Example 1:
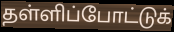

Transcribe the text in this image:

தள்ளிப்போட்டுக்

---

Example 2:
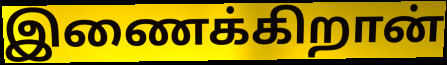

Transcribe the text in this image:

இணைக்கிறான்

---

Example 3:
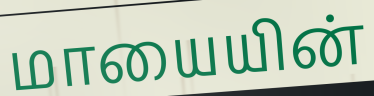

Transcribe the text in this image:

மாயையின்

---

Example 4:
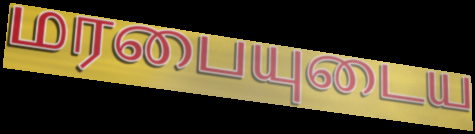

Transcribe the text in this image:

மரபையுடைய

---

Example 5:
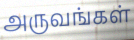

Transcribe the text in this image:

அருவங்கள்